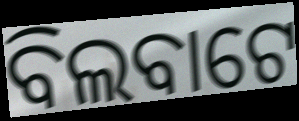
ବିଲବାଟେ